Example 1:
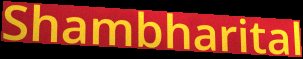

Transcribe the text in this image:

Shambharital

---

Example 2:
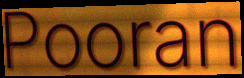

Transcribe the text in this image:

Pooran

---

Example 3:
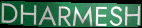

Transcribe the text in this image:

DHARMESH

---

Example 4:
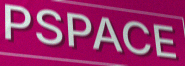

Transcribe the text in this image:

PSPACE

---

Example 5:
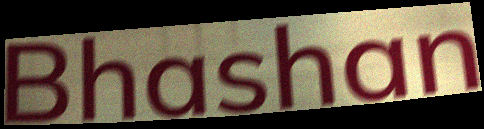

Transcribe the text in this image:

Bhashan